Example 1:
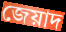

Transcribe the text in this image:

জেয়াদ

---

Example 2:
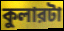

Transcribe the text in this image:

কুলারটা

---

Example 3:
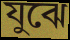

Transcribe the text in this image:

যুঝে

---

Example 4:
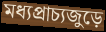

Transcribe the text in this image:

মধ্যপ্রাচ্যজুড়ে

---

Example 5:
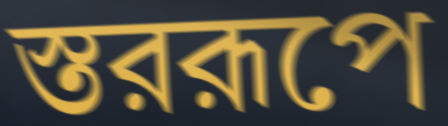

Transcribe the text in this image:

স্তররূপে